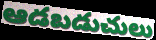
ఆడబడుచులు